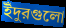
ইঁদুরগুলো